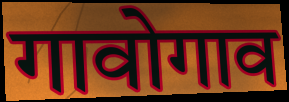
गावोगाव